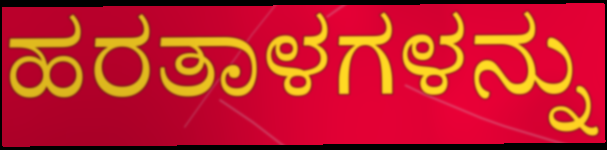
ಹರತಾಳಗಳನ್ನು